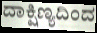
ದಾಕ್ಷಿಣ್ಯದಿಂದ